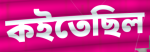
কইতেছিল